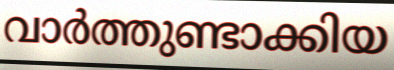
വാർത്തുണ്ടാക്കിയ